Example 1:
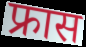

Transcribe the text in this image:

फ्रास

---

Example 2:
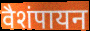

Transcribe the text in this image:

वैशंपायन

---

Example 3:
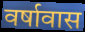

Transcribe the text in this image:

वर्षावास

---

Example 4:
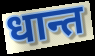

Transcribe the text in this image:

धान्त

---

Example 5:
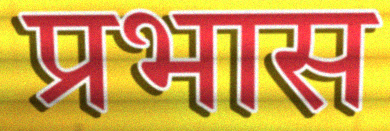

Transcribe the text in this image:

प्रभास